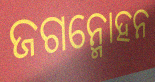
ଜଗନ୍ମୋହନ